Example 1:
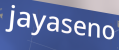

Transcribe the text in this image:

jayaseno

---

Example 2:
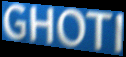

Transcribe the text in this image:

GHOTI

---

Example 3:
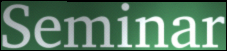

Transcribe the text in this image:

Seminar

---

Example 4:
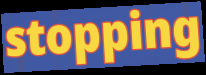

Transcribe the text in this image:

stopping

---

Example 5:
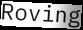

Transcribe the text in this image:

Roving